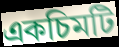
একচিমটি